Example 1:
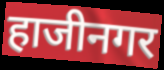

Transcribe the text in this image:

हाजीनगर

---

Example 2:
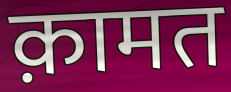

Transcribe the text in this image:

क़ामत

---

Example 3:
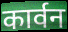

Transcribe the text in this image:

कार्वन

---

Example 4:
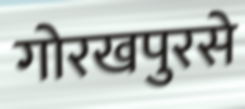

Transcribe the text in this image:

गोरखपुरसे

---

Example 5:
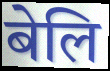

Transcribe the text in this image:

बेलि